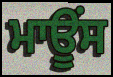
ਮਾਊਂਸ